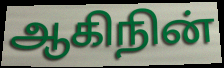
ஆகிநின்